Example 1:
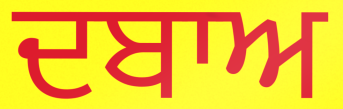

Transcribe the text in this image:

ਦਬਾਅ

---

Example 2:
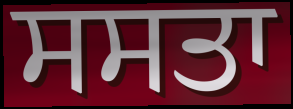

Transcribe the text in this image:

ਸਸਤਾ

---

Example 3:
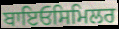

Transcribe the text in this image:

ਬਾਇਓਸਿਮਿਲਰ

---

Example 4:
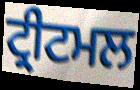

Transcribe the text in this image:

ਟ੍ਰੀਟਮਲ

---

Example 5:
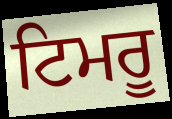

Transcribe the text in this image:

ਟਿਮਰੂ